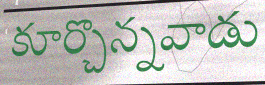
కూర్చొన్నవాడు